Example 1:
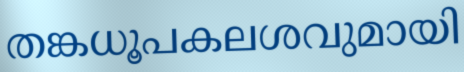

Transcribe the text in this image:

തങ്കധൂപകലശവുമായി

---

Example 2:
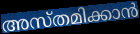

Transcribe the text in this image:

അസ്തമിക്കാൻ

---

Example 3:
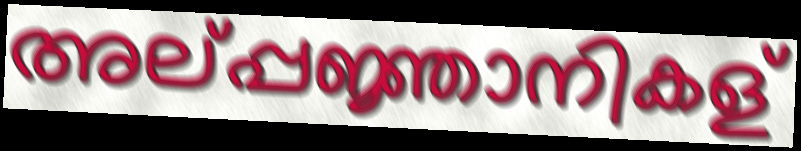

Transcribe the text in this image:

അല്പ്പജ്ഞാനികള്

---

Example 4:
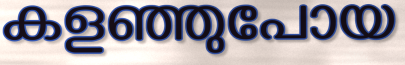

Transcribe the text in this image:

കളഞ്ഞുപോയ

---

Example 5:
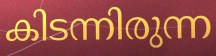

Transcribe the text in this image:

കിടന്നിരുന്ന